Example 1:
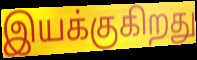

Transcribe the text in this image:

இயக்குகிறது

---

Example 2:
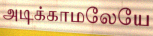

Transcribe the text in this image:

அடிக்காமலேயே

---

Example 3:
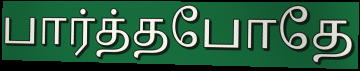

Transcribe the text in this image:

பார்த்தபோதே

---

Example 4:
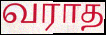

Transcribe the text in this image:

வராத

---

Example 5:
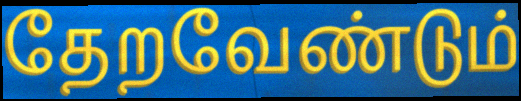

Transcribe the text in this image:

தேறவேண்டும்